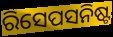
ରିସେପସନିଷ୍ଟ